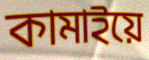
কামাইয়ে